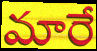
మారే